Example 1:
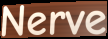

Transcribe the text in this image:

Nerve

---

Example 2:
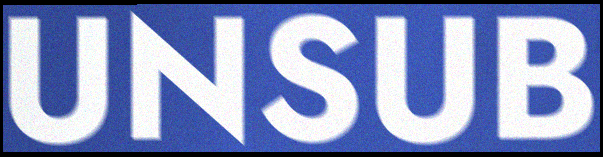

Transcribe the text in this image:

UNSUB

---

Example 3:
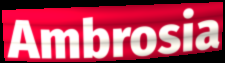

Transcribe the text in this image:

Ambrosia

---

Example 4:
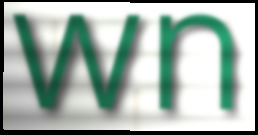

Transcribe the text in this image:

wn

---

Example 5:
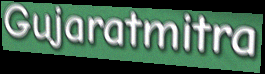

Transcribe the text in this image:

Gujaratmitra